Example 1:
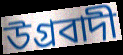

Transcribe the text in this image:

উগ্রবাদী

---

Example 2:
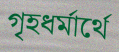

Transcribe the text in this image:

গৃহধর্মার্থে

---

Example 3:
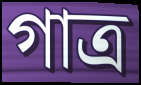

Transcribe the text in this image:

গাত্র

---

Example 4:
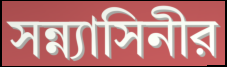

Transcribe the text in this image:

সন্ন্যাসিনীর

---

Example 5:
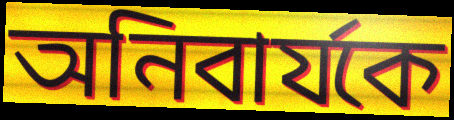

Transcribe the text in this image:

অনিবার্যকে